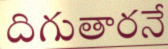
దిగుతారనే